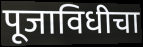
पूजाविधीचा